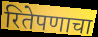
रितेपणाचा